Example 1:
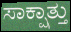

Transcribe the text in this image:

ಸಾಕ್ಷಾತ್ತು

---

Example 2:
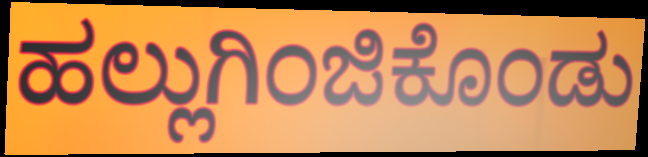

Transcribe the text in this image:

ಹಲ್ಲುಗಿಂಜಿಕೊಂಡು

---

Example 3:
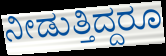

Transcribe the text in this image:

ನೀಡುತ್ತಿದ್ದರೂ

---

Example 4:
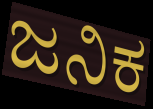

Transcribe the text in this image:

ಜನಿಕ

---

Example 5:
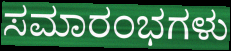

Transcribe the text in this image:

ಸಮಾರಂಭಗಳು